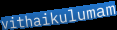
vithaikulumam